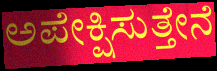
ಅಪೇಕ್ಷಿಸುತ್ತೇನೆ